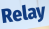
Relay